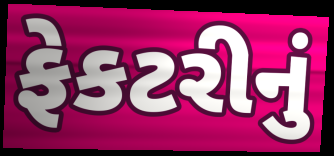
ફેકટરીનું